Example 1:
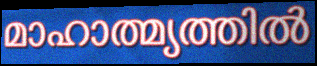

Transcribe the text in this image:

മാഹാത്മ്യത്തിൽ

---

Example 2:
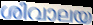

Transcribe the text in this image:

ശിവാലയ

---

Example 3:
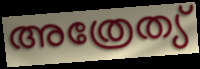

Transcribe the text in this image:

അത്രേത്യ്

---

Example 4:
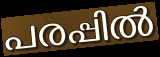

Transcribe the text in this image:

പരപ്പിൽ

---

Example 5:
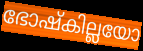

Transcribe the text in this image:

ഭോഷ്കില്ലയോ